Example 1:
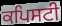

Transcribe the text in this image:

ਕਪਿਸਟੀ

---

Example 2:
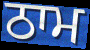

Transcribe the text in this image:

ਠਾਮ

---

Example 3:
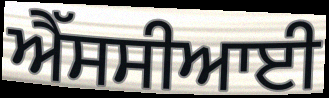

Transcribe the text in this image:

ਐੱਸਸੀਆਈ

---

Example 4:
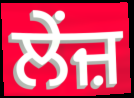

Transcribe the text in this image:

ਲੇਂਜ਼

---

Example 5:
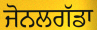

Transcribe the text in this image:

ਜੋਨਲਗੱਡਾ